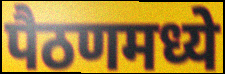
पैठणमध्ये